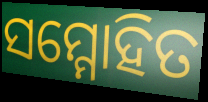
ସମ୍ମୋହିତ